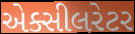
એક્સીલરેટર